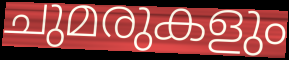
ചുമരുകളും